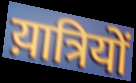
य़ात्रियों